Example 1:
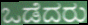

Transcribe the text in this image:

ಒಡೆದರು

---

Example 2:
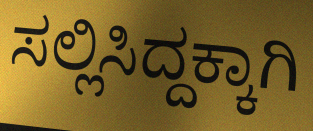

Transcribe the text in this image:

ಸಲ್ಲಿಸಿದ್ದಕ್ಕಾಗಿ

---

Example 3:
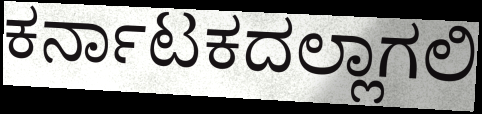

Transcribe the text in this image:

ಕರ್ನಾಟಕದಲ್ಲಾಗಲಿ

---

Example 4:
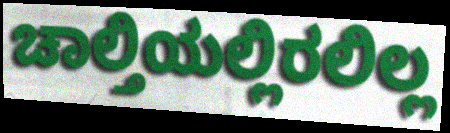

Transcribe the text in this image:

ಚಾಲ್ತಿಯಲ್ಲಿರಲಿಲ್ಲ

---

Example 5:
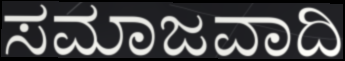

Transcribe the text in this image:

ಸಮಾಜವಾದಿ